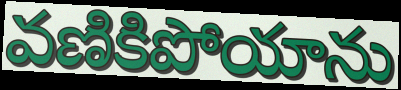
వణికిపోయాను